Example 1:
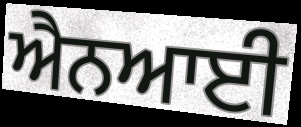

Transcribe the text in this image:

ਐਨਆਈ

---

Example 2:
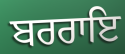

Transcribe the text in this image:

ਬਰਰਾਇ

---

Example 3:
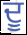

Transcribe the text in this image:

ਦੂ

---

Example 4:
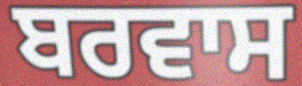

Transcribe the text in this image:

ਬਰਵਾਸ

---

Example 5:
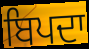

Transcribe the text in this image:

ਬਿਪਦਾ